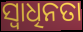
ସ୍ଵାଧିନତା